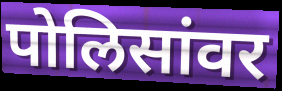
पोलिसांवर